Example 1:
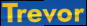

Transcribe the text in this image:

Trevor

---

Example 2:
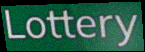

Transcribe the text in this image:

Lottery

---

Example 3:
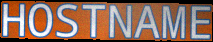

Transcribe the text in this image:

HOSTNAME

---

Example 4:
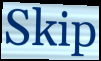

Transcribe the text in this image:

Skip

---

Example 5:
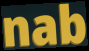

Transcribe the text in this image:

nab